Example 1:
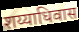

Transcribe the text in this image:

शय्याधिवास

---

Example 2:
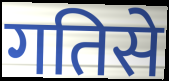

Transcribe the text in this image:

गतिसे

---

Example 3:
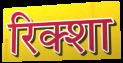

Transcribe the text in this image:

रिक्‍शा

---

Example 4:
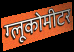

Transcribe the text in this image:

ग्लूकोमीटर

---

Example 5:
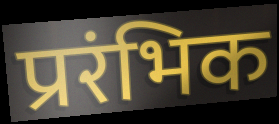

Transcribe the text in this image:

प्ररंभिक